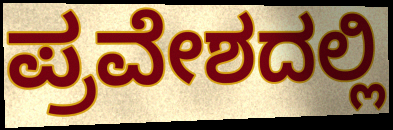
ಪ್ರವೇಶದಲ್ಲಿ